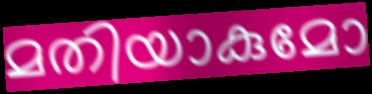
മതിയാകുമോ